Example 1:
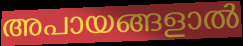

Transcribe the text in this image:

അപായങ്ങളാൽ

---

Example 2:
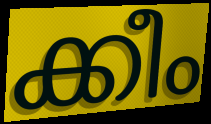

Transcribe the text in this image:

ക്കീം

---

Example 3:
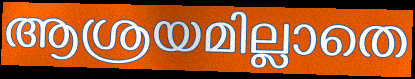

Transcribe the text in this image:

ആശ്രയമില്ലാതെ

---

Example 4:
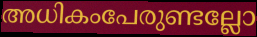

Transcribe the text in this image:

അധികംപേരുണ്ടല്ലോ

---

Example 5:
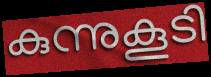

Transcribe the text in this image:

കുന്നുകൂടി